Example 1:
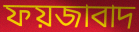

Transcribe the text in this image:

ফয়জাবাদ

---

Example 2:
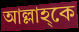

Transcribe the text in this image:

আল্লাহ্কে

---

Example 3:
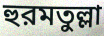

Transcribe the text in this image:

হুরমতুল্লা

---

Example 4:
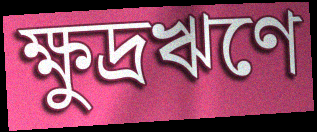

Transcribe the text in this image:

ক্ষুদ্রঋণে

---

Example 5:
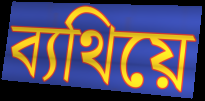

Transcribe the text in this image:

ব্যথিয়ে